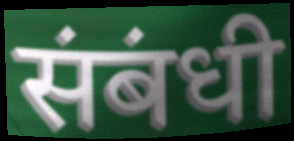
संबंधी